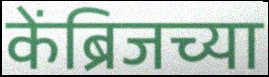
केंब्रिजच्या